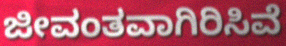
ಜೀವಂತವಾಗಿರಿಸಿವೆ